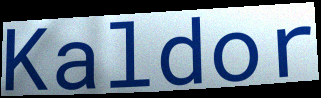
Kaldor